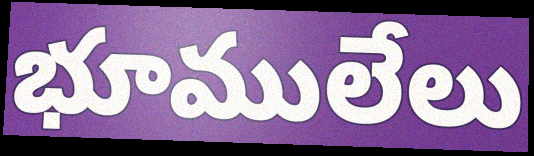
భూములేలు